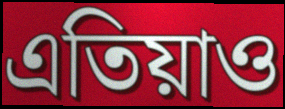
এতিয়াও